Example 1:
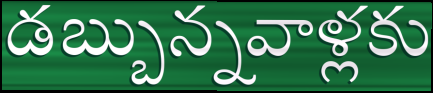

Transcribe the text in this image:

డబ్బున్నవాళ్లకు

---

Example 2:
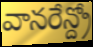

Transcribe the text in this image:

వానరేన్ద్రో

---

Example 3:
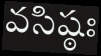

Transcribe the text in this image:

వసిష్ఠః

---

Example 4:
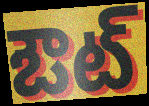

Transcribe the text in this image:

ఔట్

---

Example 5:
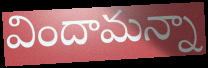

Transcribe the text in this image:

విందామన్నా